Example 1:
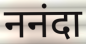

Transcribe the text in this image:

ननंदा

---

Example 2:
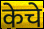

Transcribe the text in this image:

केचे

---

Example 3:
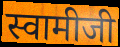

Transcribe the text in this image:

स्वामीजी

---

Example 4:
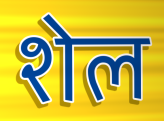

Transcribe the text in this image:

शेल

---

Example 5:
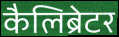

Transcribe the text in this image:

कैलिब्रेटर